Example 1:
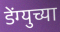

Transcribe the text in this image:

डेंग्युच्या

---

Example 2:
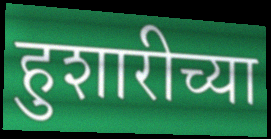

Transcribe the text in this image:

हुशारीच्या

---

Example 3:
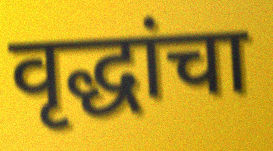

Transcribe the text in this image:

वृद्धांचा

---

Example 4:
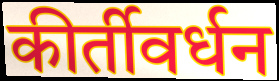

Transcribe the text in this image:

कीर्तीवर्धन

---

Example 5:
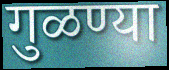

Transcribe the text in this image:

गुळण्या